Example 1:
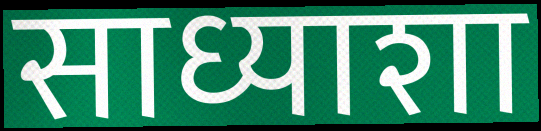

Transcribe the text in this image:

साध्याशा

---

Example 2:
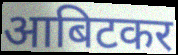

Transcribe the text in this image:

आबिटकर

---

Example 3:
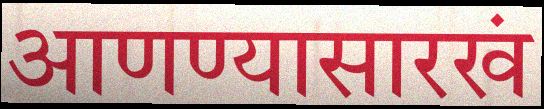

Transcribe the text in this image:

आणण्यासारखं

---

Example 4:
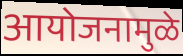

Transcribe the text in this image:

आयोजनामुळे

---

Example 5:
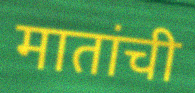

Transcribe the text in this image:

मातांची